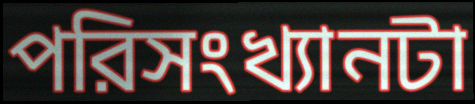
পরিসংখ্যানটা